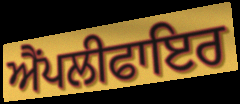
ਐਂਪਲੀਫਾਇਰ